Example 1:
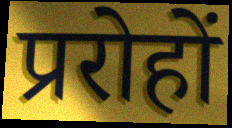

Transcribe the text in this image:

प्ररोहों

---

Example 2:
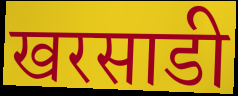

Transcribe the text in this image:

खरसाडी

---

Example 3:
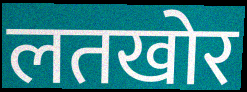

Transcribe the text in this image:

लतखोर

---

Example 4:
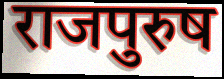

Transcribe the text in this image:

राजपुरुष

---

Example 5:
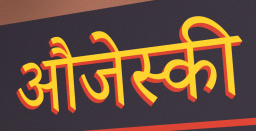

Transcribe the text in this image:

औजेस्की